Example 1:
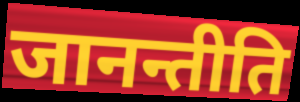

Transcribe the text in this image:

जानन्तीति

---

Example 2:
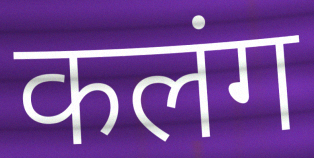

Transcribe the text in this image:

कलंग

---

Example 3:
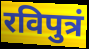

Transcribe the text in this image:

रविपुत्रं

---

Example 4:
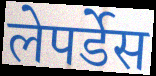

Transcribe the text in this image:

लेपर्डेस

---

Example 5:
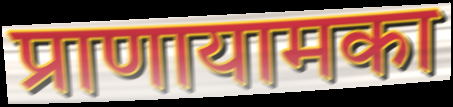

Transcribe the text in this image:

प्राणायामका